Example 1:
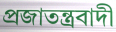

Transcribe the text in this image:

প্রজাতন্ত্রবাদী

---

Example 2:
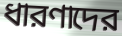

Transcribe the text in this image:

ধারণাদের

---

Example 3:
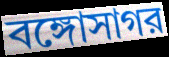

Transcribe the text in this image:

বঙ্গোসাগর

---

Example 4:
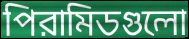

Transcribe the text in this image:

পিরামিডগুলো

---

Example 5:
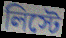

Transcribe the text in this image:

লিস্টে